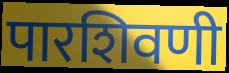
पारशिवणी